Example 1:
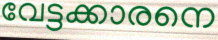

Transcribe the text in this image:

വേട്ടക്കാരനെ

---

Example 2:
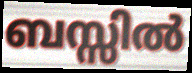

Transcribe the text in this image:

ബസ്സിൽ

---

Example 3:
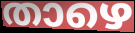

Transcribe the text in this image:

താഴെ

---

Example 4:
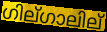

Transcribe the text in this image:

ഗില്ഗാലില്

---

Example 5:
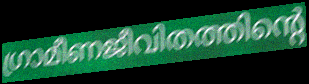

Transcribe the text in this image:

ഗ്രാമീണജീവിതത്തിന്റെ